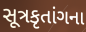
સૂત્રકૃતાંગના